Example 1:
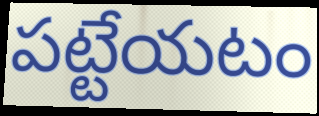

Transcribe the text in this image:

పట్టేయటం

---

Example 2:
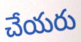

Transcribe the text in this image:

చేయరు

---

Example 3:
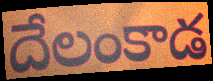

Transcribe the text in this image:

దేలంకాడ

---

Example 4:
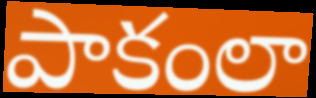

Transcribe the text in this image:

పాకంలా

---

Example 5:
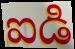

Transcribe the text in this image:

ఐడి